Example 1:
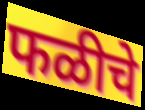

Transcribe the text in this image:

फळीचे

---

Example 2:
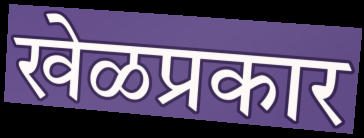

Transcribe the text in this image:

खेळप्रकार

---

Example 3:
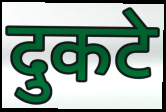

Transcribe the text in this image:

दुकटे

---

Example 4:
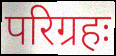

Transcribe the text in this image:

परिग्रहः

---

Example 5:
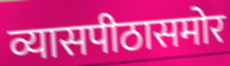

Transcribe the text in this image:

व्यासपीठासमोर